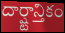
దార్ష్టాన్తికం